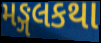
મઙ્ગલકથા